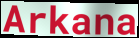
Arkana